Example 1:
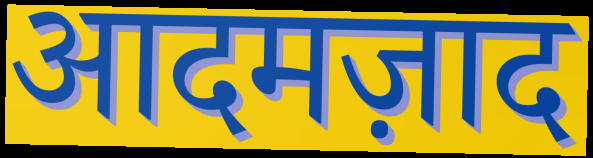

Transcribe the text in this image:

आदमज़ाद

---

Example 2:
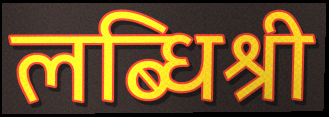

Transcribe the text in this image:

लब्धिश्री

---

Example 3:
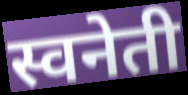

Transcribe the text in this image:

स्वनेती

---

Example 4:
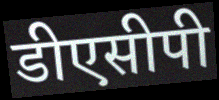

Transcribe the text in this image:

डीएसीपी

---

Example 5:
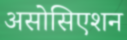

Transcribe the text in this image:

असोसिएशन